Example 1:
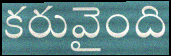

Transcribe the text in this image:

కరువైంది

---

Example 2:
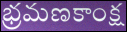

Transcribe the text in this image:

భ్రమణకాంక్ష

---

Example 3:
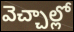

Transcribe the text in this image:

వెచ్చాల్లో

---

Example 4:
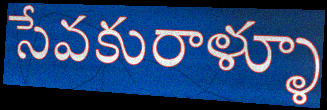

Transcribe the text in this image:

సేవకురాళ్ళూ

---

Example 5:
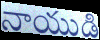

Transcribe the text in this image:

నాయుడి